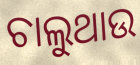
ଚାଲୁଥାଉ